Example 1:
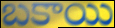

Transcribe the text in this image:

బకాయి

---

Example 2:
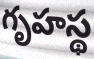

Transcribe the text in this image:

గృహస్థ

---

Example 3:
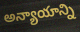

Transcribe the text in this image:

అన్యాయాన్ని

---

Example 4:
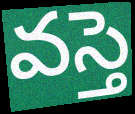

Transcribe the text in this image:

వస్తె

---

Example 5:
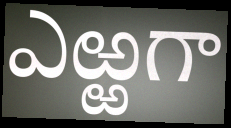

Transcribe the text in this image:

ఎఱ్ఱగా